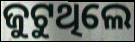
ଜୁଟୁଥିଲେ